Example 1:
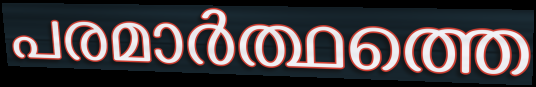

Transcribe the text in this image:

പരമാർത്ഥത്തെ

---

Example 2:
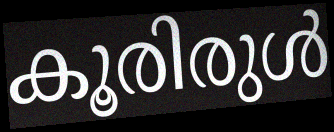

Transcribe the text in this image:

കൂരിരുൾ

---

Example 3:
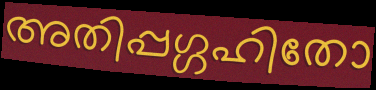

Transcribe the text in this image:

അതിപ്പഗ്ഗഹിതോ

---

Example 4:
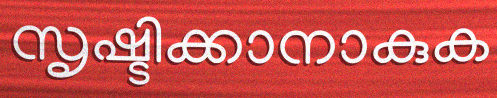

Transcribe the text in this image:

സൃഷ്ടിക്കാനാകുക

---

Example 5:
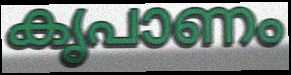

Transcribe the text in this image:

കൃപാണം